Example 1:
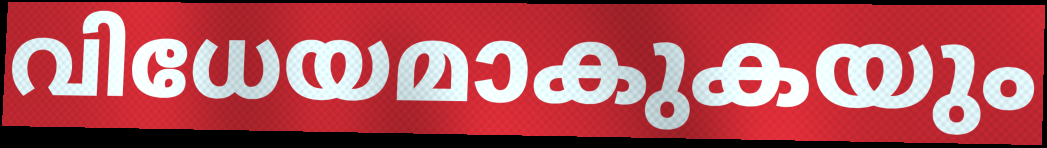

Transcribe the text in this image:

വിധേയമാകുകയും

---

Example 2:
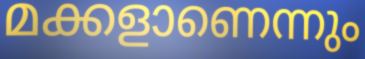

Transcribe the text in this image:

മക്കളാണെന്നും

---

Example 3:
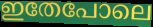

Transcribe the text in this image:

ഇതേപോലെ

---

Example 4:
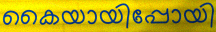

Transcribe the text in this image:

കൈയായിപ്പോയി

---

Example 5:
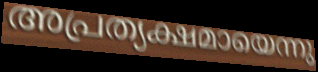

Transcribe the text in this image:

അപ്രത്യക്ഷമായെന്നു